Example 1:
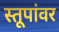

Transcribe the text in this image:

स्तूपांवर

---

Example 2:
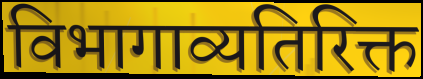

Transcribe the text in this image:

विभागाव्यतिरिक्त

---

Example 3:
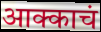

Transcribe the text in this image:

आक्काचं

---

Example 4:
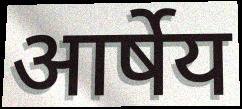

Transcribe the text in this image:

आर्षेय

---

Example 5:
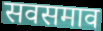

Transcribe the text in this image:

सवसमाव